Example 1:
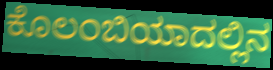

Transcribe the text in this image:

ಕೊಲಂಬಿಯಾದಲ್ಲಿನ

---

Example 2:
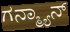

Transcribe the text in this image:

ಗನ್ಮ್ಯಾನ್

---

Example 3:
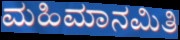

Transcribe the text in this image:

ಮಹಿಮಾನಮಿತಿ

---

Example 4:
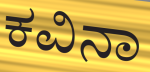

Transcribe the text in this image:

ಕವಿನಾ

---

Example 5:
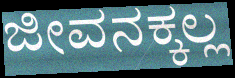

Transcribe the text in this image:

ಜೀವನಕ್ಕಲ್ಲ